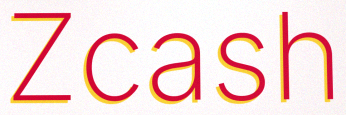
Zcash